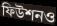
ফিউশনও